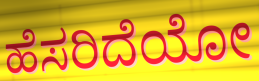
ಹೆಸರಿದೆಯೋ